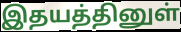
இதயத்தினுள்